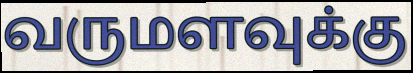
வருமளவுக்கு